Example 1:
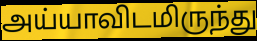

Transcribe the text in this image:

அய்யாவிடமிருந்து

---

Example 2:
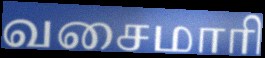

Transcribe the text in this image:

வசைமாரி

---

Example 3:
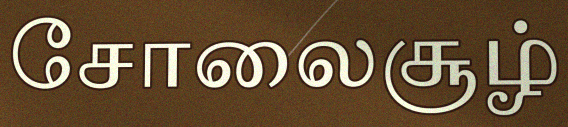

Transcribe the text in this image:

சோலைசூழ்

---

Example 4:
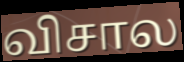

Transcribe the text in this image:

விசால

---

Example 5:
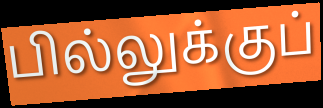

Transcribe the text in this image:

பில்லுக்குப்